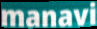
manavi